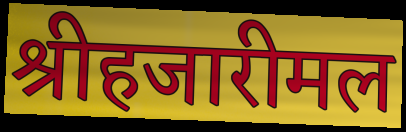
श्रीहजारीमल